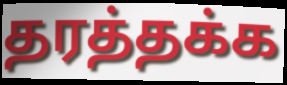
தரத்தக்க